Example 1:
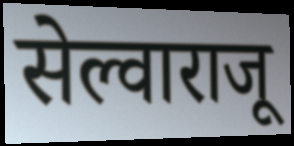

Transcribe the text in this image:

सेल्वाराजू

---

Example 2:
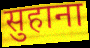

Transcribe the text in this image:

सुहाना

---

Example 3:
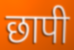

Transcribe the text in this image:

छापी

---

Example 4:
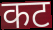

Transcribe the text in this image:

कट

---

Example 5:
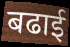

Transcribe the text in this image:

बढाई